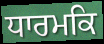
ਧਾਰਮਕਿ